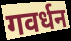
गवर्धन